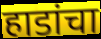
हाडांचा